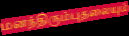
மனந்திரும்புதலையும்